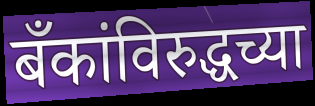
बँकांविरुद्धच्या